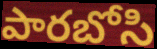
పారబోసి